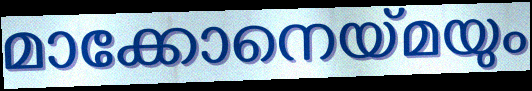
മാക്കോനെയ്മയും